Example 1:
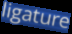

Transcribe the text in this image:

ligature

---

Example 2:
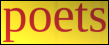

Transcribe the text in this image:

poets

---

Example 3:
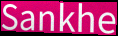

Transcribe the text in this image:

Sankhe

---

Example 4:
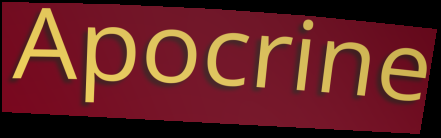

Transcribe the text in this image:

Apocrine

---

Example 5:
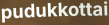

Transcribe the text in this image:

pudukkottai